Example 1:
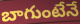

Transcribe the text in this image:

బాగుంటేనే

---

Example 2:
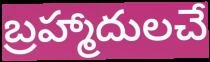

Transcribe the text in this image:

బ్రహ్మాదులచే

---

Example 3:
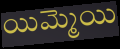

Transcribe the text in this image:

యిమ్మెయి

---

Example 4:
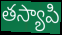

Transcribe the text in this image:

తస్యాపి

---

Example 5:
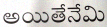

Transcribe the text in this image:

అయితేనేమి